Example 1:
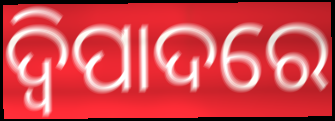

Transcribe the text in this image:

ଦ୍ୱିପାଦରେ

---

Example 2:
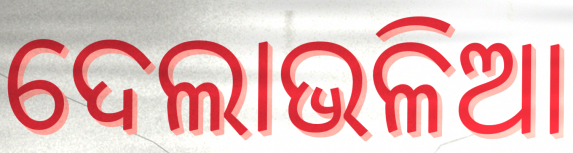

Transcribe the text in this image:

ଦେଲାଭଳିଆ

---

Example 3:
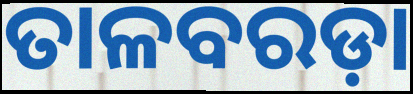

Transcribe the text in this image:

ତାଳବରଡ଼ା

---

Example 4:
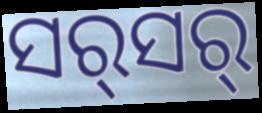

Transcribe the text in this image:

ସର୍‍ସର୍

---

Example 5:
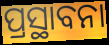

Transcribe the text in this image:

ପ୍ରସ୍ଥାବନା